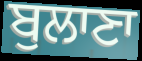
ਬੁਲਾਣਾ